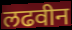
लढवीन